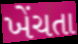
ખેંચતા